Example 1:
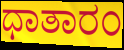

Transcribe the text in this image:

ಧಾತಾರಂ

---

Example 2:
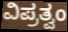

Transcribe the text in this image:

ವಿಪ್ರತ್ವಂ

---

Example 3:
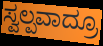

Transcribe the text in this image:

ಸ್ವಲ್ಪವಾದ್ರೂ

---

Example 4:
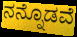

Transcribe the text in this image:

ನನ್ನೊಡವೆ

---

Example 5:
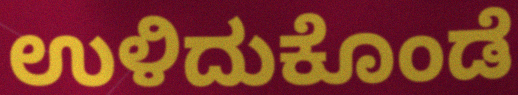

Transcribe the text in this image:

ಉಳಿದುಕೊಂಡೆ